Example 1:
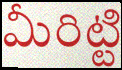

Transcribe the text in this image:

మీరిట్టి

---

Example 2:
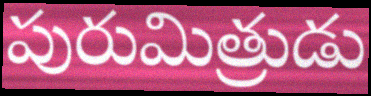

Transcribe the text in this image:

పురుమిత్రుడు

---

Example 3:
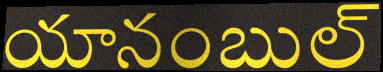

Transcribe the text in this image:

యానంబుల్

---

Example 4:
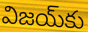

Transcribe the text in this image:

విజయ్‌కు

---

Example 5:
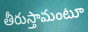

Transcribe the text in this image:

తీరుస్తామంటూ